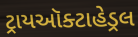
ટ્રાયઑક્ટાહેડ્રલ